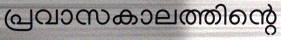
പ്രവാസകാലത്തിന്റെ